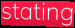
stating